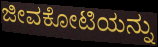
ಜೀವಕೋಟಿಯನ್ನು